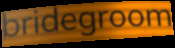
bridegroom